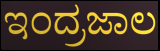
ಇಂದ್ರಜಾಲ